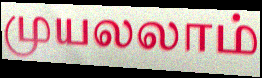
முயலலாம்